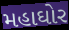
મહાઘોર